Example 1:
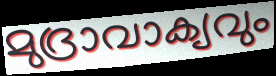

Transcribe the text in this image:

മുദ്രാവാക്യവും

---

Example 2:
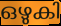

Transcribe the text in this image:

ഒഴുകി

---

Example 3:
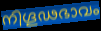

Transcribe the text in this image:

നിഗൂഢഭാവം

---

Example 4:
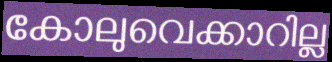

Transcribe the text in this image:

കോലുവെക്കാറില്ല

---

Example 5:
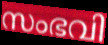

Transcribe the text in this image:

സംഭവി